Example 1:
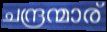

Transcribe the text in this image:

ചന്ദ്രന്മാര്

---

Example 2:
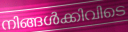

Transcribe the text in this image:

നിങ്ങൾക്കിവിടെ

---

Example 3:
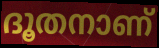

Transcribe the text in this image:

ദൂതനാണ്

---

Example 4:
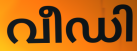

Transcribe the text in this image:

വീഡി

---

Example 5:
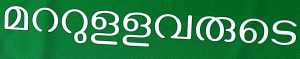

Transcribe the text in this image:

മററുളളവരുടെ